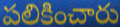
పలికించారు